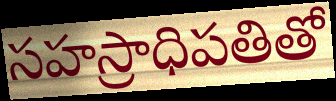
సహస్రాధిపతితో